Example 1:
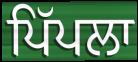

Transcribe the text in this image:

ਪਿੱਪਲਾ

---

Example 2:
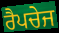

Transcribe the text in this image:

ਰੈਪਚੇਜ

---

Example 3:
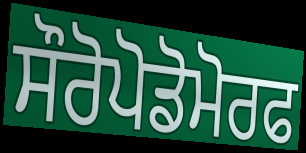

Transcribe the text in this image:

ਸੌਰੋਪੋਡੋਮੋਰਫ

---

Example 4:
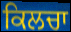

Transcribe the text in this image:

ਕਿਲਚਾ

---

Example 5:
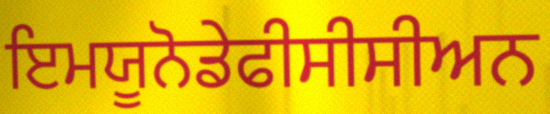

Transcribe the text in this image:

ਇਮਯੂਨੋਡੇਫੀਸੀਸੀਅਨ